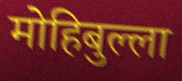
मोहिबुल्ला